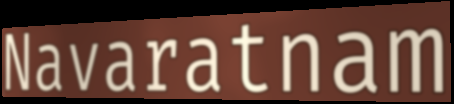
Navaratnam